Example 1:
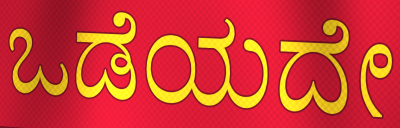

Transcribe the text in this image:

ಒಡೆಯದೇ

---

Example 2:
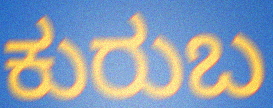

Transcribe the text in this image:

ಕುರುಬ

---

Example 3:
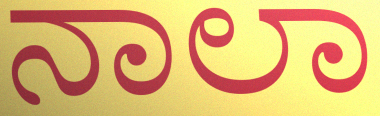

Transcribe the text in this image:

ನಾಲಾ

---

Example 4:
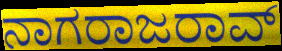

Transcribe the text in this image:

ನಾಗರಾಜರಾವ್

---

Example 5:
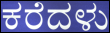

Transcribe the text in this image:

ಕರೆದಳು